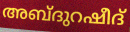
അബ്ദുറഷീദ്